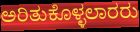
ಅರಿತುಕೊಳ್ಳಲಾರರು